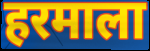
हरमाला